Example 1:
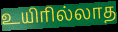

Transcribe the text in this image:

உயிரில்லாத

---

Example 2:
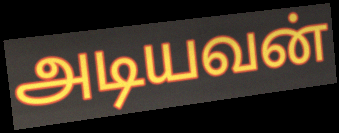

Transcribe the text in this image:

அடியவன்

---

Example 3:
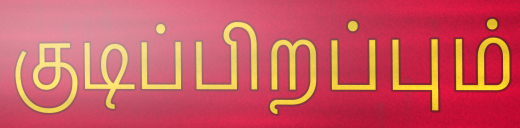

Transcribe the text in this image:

குடிப்பிறப்பும்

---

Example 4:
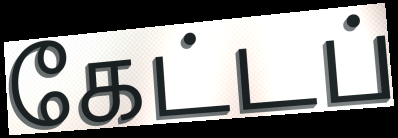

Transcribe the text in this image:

கேட்டப்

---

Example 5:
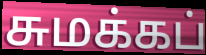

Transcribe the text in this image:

சுமக்கப்